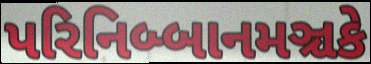
પરિનિબ્બાનમઞ્ચકે